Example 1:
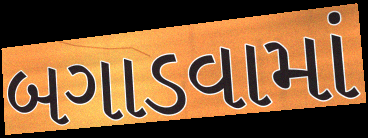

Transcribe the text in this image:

બગાડવામાં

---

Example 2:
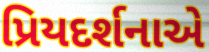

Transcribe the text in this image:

પ્રિયદર્શનાએ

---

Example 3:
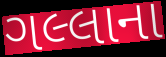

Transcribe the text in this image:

ગલ્લાના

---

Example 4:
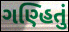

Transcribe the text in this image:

ગણ્હિતું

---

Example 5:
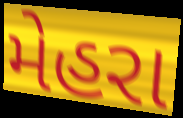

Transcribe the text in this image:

મેહરા